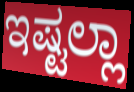
ಇಷ್ಟಲ್ಲಾ